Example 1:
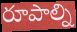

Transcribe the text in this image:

రూపాల్ని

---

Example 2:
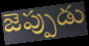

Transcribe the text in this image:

జెప్పుడు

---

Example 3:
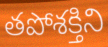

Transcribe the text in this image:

తపోశక్తిని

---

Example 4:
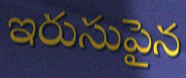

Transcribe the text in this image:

ఇరుసుపైన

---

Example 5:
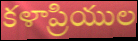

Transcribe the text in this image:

కళాప్రియుల